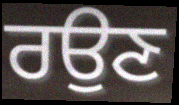
ਰਉਣ